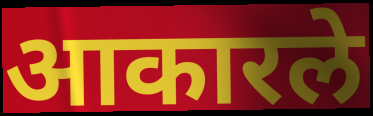
आकारले